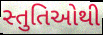
સ્તુતિઓથી